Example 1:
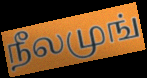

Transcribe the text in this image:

நீலமுங்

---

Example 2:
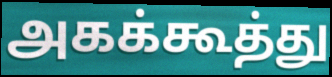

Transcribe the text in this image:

அகக்கூத்து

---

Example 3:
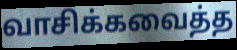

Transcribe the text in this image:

வாசிக்கவைத்த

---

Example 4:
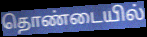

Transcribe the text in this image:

தொண்டையில்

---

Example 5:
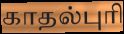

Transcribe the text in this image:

காதல்புரி